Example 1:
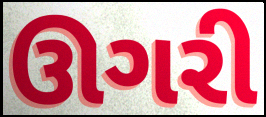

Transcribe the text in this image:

ઊગરી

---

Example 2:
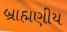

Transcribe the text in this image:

બ્રાહ્મણીય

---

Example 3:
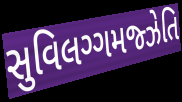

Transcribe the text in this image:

સુવિલગ્ગમજ્ઝેતિ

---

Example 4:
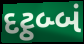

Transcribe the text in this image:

દટ્ઠબ્બં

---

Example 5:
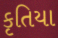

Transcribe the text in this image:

કૃતિયા